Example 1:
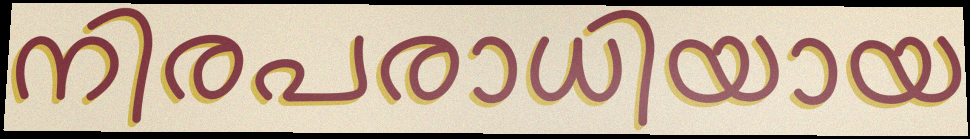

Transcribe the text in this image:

നിരപരാധിയായ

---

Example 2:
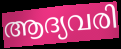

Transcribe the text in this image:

ആദ്യവരി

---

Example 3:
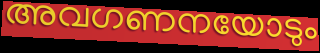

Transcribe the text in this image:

അവഗണനയോടും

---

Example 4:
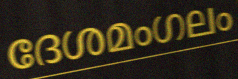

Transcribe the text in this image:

ദേശമംഗലം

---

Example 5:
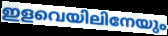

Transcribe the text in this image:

ഇളവെയിലിനേയും